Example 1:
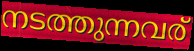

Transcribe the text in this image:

നടത്തുന്നവര്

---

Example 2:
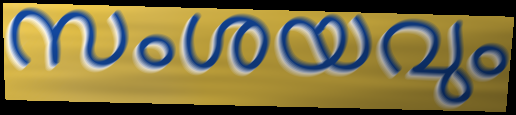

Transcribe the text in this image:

സംശയവും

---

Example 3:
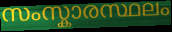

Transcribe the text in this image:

സംസ്കാരസ്ഥലം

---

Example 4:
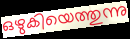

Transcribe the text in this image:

ഒഴുകിയെത്തുന്നു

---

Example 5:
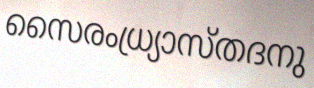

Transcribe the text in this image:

സൈരംധ്ര്യാസ്തദനു